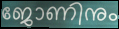
ജോണിനും